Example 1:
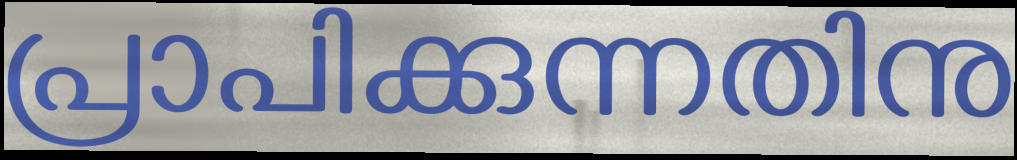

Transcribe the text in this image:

പ്രാപിക്കുന്നതിനു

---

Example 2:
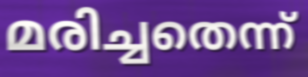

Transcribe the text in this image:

മരിച്ചതെന്ന്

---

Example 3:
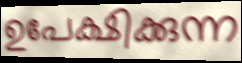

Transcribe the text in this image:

ഉപേക്ഷിക്കുന്ന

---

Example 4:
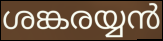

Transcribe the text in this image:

ശങ്കരയ്യൻ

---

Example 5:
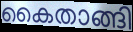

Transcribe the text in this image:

കൈതാങ്ങി